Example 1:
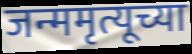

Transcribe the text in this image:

जन्ममृत्यूच्या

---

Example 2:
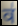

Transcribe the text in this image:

व॑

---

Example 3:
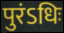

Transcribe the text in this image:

पुरंऽधिः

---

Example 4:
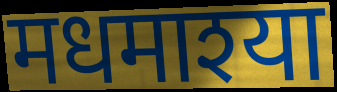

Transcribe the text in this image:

मधमाश्‍या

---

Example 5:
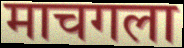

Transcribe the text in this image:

माचगला